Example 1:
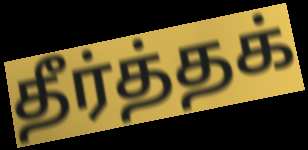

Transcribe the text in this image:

தீர்த்தக்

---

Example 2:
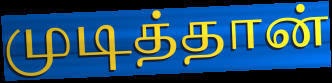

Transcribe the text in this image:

முடித்தான்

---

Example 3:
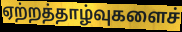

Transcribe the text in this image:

ஏற்றத்தாழ்வுகளைச்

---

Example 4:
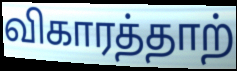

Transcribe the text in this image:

விகாரத்தாற்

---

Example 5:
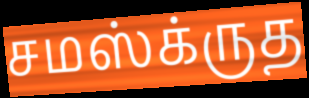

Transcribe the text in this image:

சமஸ்க்ருத